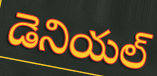
డెనియల్